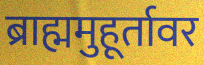
ब्राह्ममुहूर्तावर